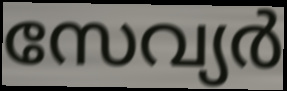
സേവ്യർ